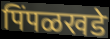
पिंपळखडे